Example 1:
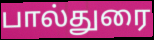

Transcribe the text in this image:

பால்துரை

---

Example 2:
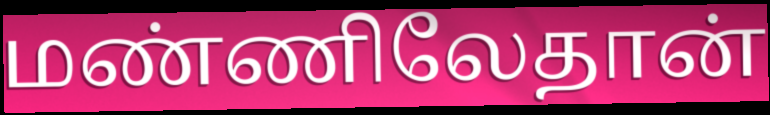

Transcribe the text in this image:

மண்ணிலேதான்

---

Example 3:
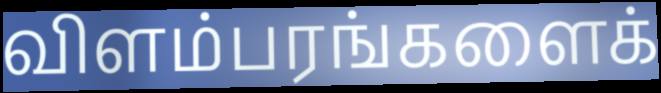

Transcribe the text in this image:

விளம்பரங்களைக்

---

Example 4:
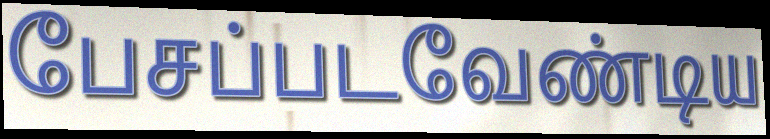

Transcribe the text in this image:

பேசப்படவேண்டிய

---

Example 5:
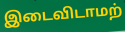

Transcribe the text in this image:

இடைவிடாமற்